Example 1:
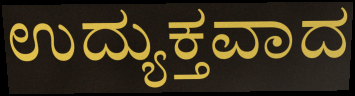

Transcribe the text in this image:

ಉದ್ಯುಕ್ತವಾದ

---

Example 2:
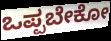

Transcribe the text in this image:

ಒಪ್ಪಬೇಕೋ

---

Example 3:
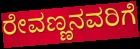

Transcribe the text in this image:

ರೇವಣ್ಣನವರಿಗೆ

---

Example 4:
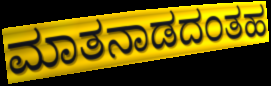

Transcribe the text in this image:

ಮಾತನಾಡದಂತಹ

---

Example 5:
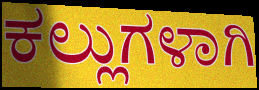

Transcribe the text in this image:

ಕಲ್ಲುಗಳಾಗಿ